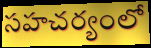
సహచర్యంలో